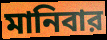
মানিবার